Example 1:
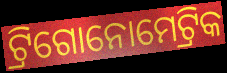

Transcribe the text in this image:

ଟ୍ରିଗୋନୋମେଟ୍ରିକ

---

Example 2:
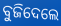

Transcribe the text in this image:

ବୁଜିଦେଲେ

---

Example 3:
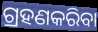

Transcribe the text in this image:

ଗ୍ରହଣକରିବା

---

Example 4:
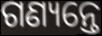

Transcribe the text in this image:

ଗଣ୍ୟନ୍ତେ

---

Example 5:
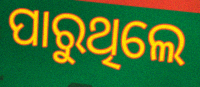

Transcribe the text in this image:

ପାରୁଥିଲେ